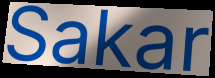
Sakar